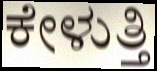
ಕೇಳುತ್ತಿ